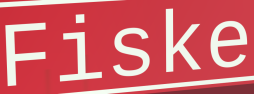
Fiske